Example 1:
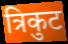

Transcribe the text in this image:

त्रिकुट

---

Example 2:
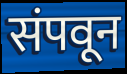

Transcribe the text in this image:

संपवून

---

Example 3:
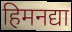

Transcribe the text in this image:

हिमनद्या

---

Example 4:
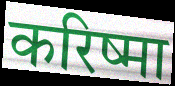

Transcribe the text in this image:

करिष्मा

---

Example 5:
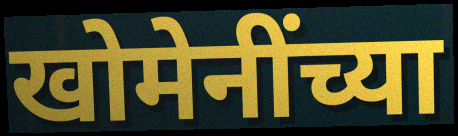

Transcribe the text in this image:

खोमेनींच्या